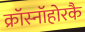
क्रॉस्नॉहोरकै